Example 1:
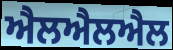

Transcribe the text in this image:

ਐਲਐਲਐਲ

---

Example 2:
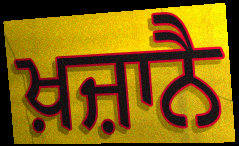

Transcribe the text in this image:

ਖ਼ਜ਼ਾਨੈ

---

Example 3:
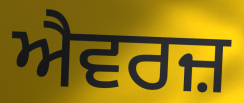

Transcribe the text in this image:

ਐਵਰਜ਼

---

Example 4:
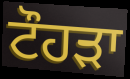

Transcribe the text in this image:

ਟੌਹਡ਼ਾ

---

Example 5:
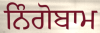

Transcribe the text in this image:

ਨਿੰਗੋਬਾਮ